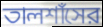
তালশাঁসের